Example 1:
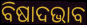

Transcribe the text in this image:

ବିଷାଦଭାବ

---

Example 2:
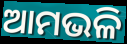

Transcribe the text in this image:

ଆମଭଳି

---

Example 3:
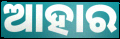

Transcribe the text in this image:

ଆହାର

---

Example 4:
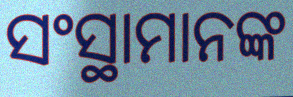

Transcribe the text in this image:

ସଂସ୍ଥାମାନଙ୍କ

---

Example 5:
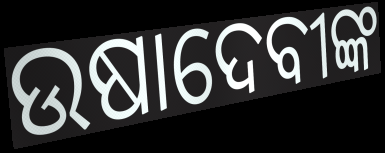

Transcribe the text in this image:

ଉଷାଦେବୀଙ୍କ